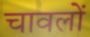
चावलों